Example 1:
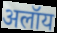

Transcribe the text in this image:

अलॉय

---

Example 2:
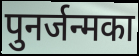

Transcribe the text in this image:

पुनर्जन्मका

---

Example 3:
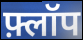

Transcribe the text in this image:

फ़्लॉप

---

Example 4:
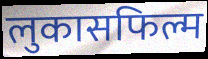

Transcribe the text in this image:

लुकासफिल्म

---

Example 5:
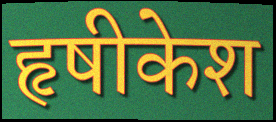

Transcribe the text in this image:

हृषीकेश